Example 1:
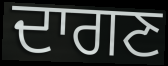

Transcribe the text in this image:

ਦਾਗਣ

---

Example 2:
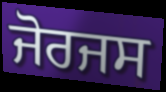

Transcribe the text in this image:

ਜੋਰਜਸ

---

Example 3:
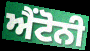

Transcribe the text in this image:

ਐਂਟੋਨੀ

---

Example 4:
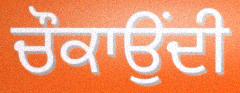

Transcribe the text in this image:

ਚੌਕਾਉਂਦੀ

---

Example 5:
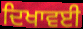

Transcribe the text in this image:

ਦਿਖਾਵਈ